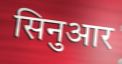
सिनुआर